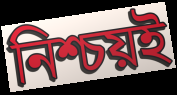
নিশ্চয়ই